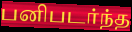
பனிபடர்ந்த